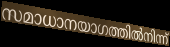
സമാധാനയാഗത്തിൽനിന്ന്